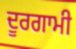
ਦੂਰਗਾਮੀ